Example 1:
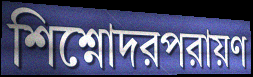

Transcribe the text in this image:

শিশ্নোদরপরায়ণ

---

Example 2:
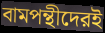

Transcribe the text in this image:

বামপন্থীদেরই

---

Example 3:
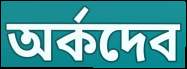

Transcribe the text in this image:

অর্কদেব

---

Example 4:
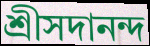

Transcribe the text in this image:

শ্রীসদানন্দ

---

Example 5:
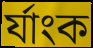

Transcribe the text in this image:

র্যাংক